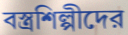
বস্ত্রশিল্পীদের